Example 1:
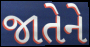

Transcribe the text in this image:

જાતેને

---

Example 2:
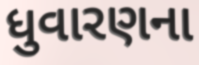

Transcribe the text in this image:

ધુવારણના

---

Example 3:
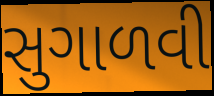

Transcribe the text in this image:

સુગાળવી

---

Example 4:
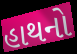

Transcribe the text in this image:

હાથનો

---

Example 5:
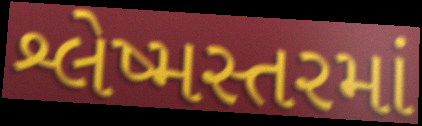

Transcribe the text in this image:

શ્લેષ્મસ્તરમાં